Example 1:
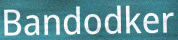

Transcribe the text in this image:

Bandodker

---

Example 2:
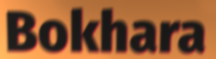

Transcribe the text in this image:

Bokhara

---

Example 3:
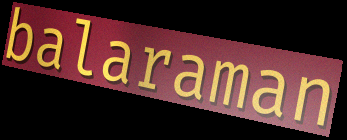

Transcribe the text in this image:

balaraman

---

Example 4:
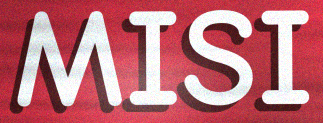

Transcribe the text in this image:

MISI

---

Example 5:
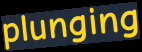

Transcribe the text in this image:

plunging